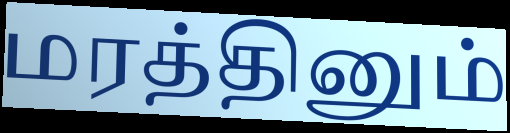
மரத்தினும்